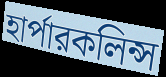
হার্পারকলিন্স